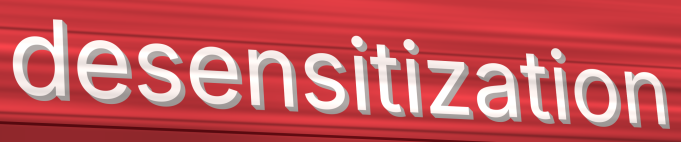
desensitization